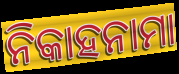
ନିକାହନାମା